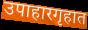
उपाहारगृहात